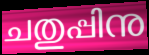
ചതുപ്പിനു